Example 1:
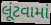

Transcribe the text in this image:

લૂંટવામાં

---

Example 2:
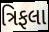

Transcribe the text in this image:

ત્રિફલા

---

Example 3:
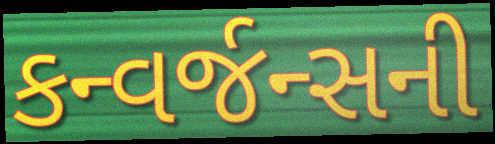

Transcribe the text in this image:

કન્વર્જન્સની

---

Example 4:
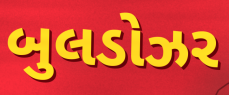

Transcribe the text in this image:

બુલડોઝર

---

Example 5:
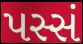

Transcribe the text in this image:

પસ્સં